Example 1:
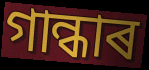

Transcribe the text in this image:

গান্ধাৰ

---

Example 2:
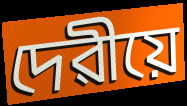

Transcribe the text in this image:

দেৱীয়ে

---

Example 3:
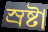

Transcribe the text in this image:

স্ৰষ্টা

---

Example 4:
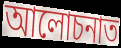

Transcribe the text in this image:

আলোচনাত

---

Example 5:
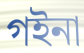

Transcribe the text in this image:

গইনা